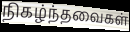
நிகழ்ந்தவைகள்